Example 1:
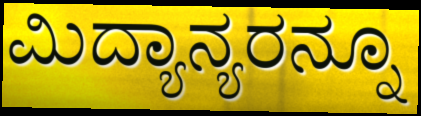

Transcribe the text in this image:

ಮಿದ್ಯಾನ್ಯರನ್ನೂ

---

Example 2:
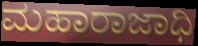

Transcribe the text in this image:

ಮಹಾರಾಜಾಧಿ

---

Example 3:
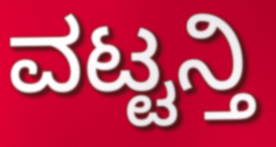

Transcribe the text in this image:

ವಟ್ಟನ್ತಿ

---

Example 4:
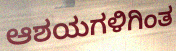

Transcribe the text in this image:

ಆಶಯಗಳಿಗಿಂತ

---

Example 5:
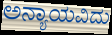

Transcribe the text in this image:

ಅನ್ಯಾಯವಿದು